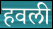
हवली